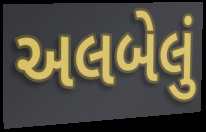
અલબેલું